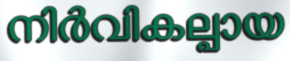
നിർവികല്പായ